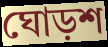
ঘোড়শ